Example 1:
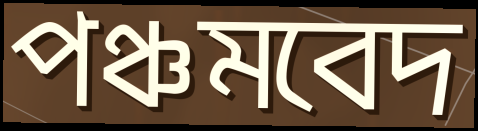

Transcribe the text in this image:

পঞ্চমবেদ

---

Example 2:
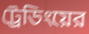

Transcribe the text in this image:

ট্রেডিংয়ের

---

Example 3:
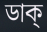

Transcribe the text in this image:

ডাক্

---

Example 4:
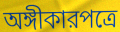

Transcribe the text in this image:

অঙ্গীকারপত্রে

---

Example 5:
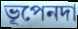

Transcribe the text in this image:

ভূপেনদা